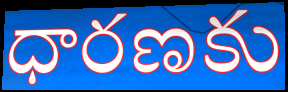
ధారణకు